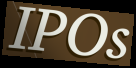
IPOs